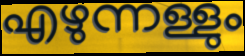
എഴുന്നള്ളും